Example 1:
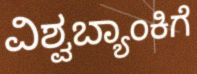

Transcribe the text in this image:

ವಿಶ್ವಬ್ಯಾಂಕಿಗೆ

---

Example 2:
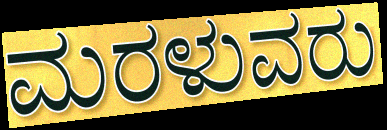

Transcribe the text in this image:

ಮರಳುವರು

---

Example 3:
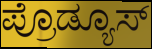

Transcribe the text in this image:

ಪ್ರೊಡ್ಯೂಸ್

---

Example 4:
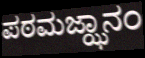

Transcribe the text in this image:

ಪಠಮಜ್ಝಾನಂ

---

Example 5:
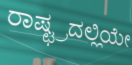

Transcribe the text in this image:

ರಾಷ್ಟ್ರದಲ್ಲಿಯೇ